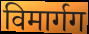
विमार्गग